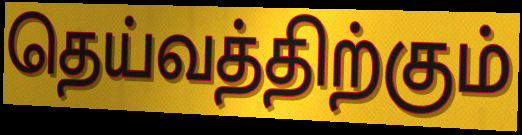
தெய்வத்திற்கும்